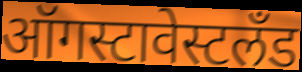
ऑगस्टावेस्टलँड